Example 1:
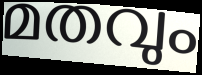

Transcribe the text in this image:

മതവും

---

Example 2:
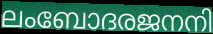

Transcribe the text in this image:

ലംബോദരജനനി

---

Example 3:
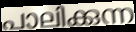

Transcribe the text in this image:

പാലിക്കുന്ന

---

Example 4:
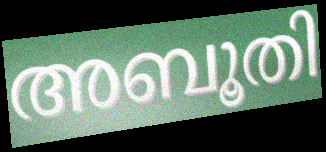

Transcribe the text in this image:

അബൂതി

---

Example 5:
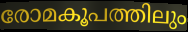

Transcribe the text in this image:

രോമകൂപത്തിലും